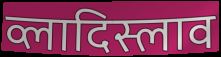
व्लादिस्लाव